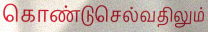
கொண்டுசெல்வதிலும்